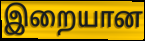
இறையான